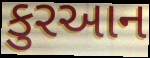
કુરઆન